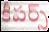
కీపర్స్